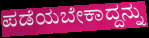
ಪಡೆಯಬೇಕಾದ್ದನ್ನು